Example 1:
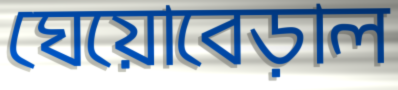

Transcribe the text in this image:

ঘেয়োবেড়াল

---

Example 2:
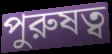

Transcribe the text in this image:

পুরুষত্ব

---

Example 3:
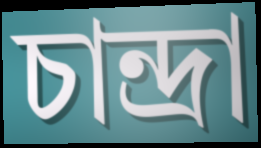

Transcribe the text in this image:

চান্দ্রা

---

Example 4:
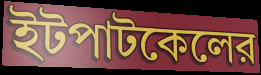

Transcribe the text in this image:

ইটপাটকেলের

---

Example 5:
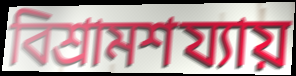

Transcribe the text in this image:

বিশ্রামশয্যায়